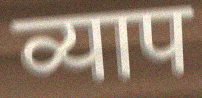
व्याप